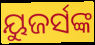
ୟୁଜର୍ସଙ୍କ